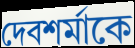
দেবশর্মাকে